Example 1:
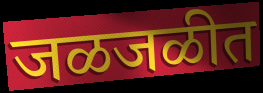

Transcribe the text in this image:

जळजळीत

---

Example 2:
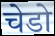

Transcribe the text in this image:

चेडो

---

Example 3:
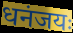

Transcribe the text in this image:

धनंजयः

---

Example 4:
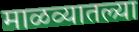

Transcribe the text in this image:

माळव्यातल्या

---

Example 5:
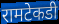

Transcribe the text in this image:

रामटेकडी